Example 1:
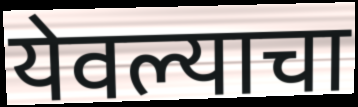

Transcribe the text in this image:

येवल्याचा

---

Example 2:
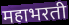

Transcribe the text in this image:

महाभरती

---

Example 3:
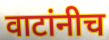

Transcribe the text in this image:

वाटांनीच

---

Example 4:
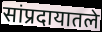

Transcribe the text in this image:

सांप्रदायातले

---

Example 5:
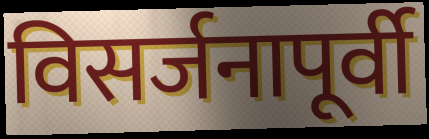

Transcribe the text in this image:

विसर्जनापूर्वी